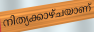
നിത്യക്കാഴ്ചയാണ്